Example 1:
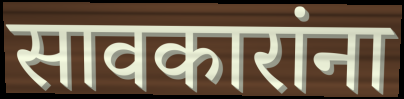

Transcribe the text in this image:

सावकारांना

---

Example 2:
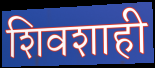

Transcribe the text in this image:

शिवशाही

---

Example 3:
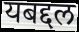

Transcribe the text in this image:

यबद्दल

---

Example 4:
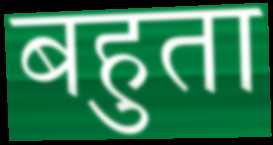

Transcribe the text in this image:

बहुता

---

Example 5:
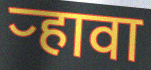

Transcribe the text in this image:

ऱ्हावा